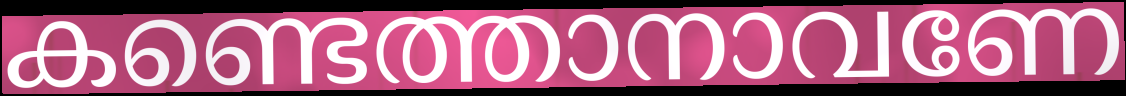
കണ്ടെത്താനാവണേ